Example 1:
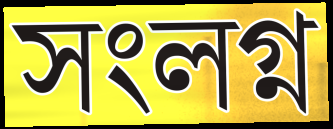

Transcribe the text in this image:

সংলগ্ন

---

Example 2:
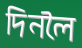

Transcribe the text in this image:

দিনলৈ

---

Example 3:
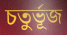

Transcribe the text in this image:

চতুৰ্ভূজ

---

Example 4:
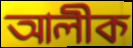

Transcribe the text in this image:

আলীক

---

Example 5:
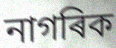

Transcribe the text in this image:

নাগৰিক